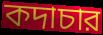
কদাচার